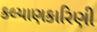
કલ્યાણકારિણી